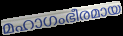
മഹാഗംഭീരമായ